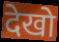
देखो